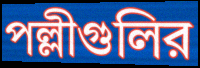
পল্লীগুলির